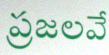
ప్రజలవే